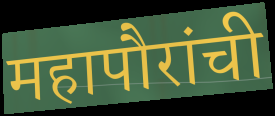
महापौरांची